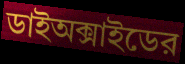
ডাইঅক্সাইডের